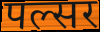
पल्सर